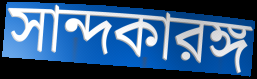
সান্দকারঙ্গ